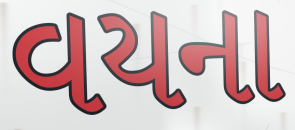
વયના